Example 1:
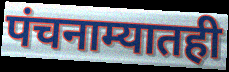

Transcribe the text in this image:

पंचनाम्यातही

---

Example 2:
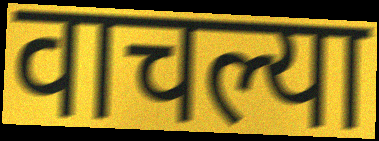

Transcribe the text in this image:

वाचल्या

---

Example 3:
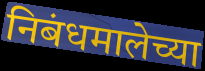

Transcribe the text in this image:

निबंधमालेच्या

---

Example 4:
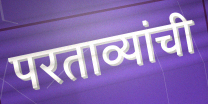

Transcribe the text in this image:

परताव्यांची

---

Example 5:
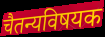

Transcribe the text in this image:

चैतन्यविषयक